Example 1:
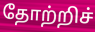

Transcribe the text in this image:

தோற்றிச்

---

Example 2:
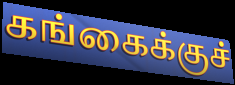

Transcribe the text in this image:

கங்கைக்குச்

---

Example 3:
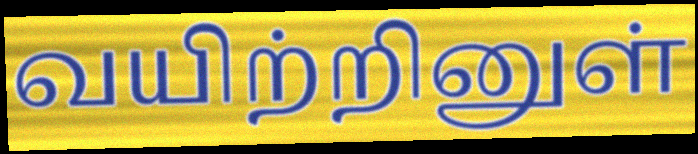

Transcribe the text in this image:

வயிற்றினுள்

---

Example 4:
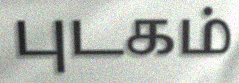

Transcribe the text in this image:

புடகம்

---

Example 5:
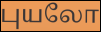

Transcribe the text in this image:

புயலோ